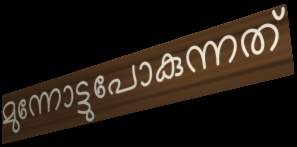
മുന്നോട്ടുപോകുന്നത്